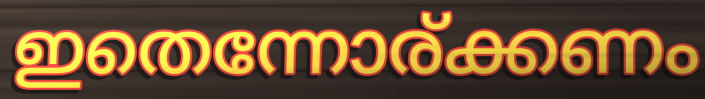
ഇതെന്നോര്ക്കണം